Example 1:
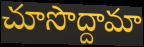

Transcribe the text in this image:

చూసొద్దామా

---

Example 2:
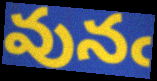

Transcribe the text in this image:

వునఁ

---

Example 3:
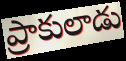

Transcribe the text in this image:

ప్రాకులాడు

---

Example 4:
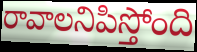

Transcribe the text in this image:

రావాలనిపిస్తోంది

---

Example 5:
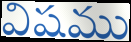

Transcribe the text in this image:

విషము